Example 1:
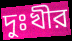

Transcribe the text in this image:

দুঃখীর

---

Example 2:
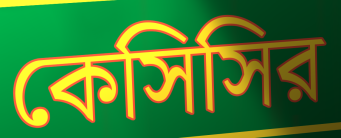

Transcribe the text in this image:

কেসিসির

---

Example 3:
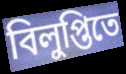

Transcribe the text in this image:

বিলুপ্তিতে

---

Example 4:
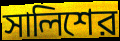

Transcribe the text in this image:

সালিশের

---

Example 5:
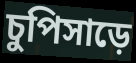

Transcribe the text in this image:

চুপিসাড়ে